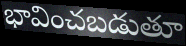
భావించబడుతూ